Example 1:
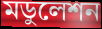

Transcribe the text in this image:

মডুলেশন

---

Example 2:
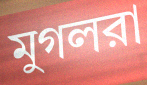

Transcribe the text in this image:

মুগলরা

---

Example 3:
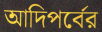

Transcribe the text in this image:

আদিপর্বের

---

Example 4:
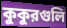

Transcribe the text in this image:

কুকুরগুলি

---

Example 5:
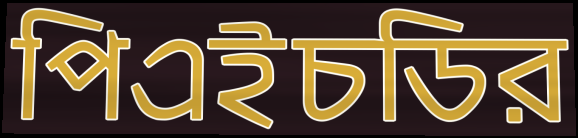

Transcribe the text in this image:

পিএইচডির